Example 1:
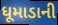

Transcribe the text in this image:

ધૂમાડાની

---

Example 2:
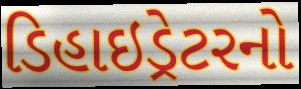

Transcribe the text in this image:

ડિહાઇડ્રેટરનો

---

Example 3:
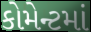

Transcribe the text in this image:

કોમેન્ટમાં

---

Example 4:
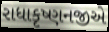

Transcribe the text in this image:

રાધાકૃષ્ણનજીએ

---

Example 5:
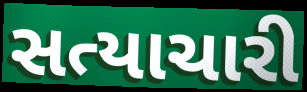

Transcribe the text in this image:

સત્યાચારી